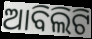
ଆବିଲିଟି